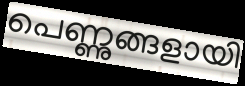
പെണ്ണുങ്ങളായി